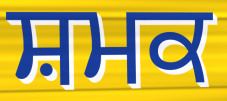
ਸ਼ਮਕ